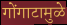
गोंगाटामुळे